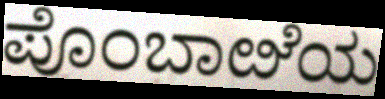
ಪೊಂಬಾೞೆಯ